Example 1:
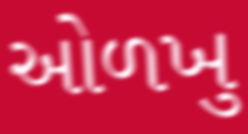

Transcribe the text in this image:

ઓળખુ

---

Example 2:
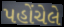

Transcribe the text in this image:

પહોંચેલે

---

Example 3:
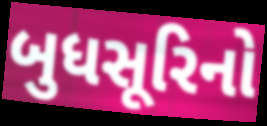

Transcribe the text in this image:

બુધસૂરિનો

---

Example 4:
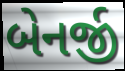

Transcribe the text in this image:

બેનર્જી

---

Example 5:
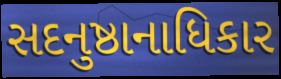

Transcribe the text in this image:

સદનુષ્ઠાનાધિકાર